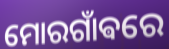
ମୋରଗାଁଵରେ